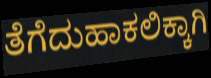
ತೆಗೆದುಹಾಕಲಿಕ್ಕಾಗಿ